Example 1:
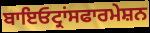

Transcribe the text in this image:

ਬਾਇਓਟ੍ਰਾਂਸਫਾਰਮੇਸ਼ਨ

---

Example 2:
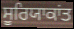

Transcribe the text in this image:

ਸੂਰਿਯਾਕਾਂਤ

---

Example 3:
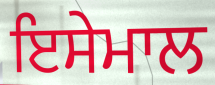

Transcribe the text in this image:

ਇਸੇਮਾਲ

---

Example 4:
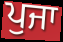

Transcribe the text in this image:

ਪੁਜਾ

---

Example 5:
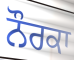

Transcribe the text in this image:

ਨੌਰਕਾ